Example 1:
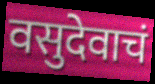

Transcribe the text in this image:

वसुदेवाचं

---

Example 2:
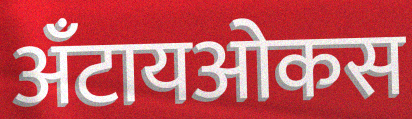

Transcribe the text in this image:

अँटायओकस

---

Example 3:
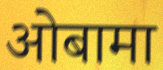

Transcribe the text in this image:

ओबामा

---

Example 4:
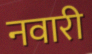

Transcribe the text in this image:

नवारी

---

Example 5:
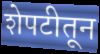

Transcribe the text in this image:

शेपटीतून